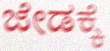
ಜೇಡಕ್ಕೆ